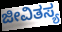
ಜೀವಿತಸ್ಯ